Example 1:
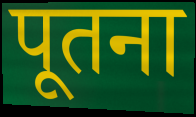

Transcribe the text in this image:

पूतना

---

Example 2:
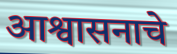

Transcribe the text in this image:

आश्वासनाचे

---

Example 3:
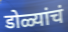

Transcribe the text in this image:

डोळ्यांचं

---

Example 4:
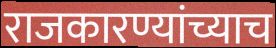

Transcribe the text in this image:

राजकारण्यांच्याच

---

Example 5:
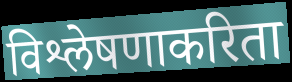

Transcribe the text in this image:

विश्लेषणाकरिता